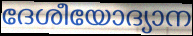
ദേശീയോദ്യാന